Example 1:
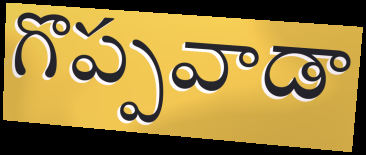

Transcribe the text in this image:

గొప్పవాడా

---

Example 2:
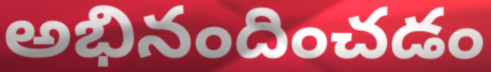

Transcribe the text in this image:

అభినందించడం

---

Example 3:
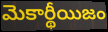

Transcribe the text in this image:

మెకార్థీయిజం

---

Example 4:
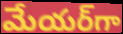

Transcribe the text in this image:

మేయర్‌గా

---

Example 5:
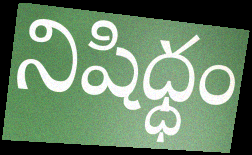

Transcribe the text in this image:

నిషిధ్ధం